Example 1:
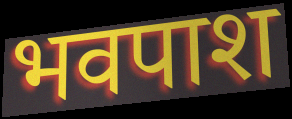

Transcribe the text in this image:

भवपाश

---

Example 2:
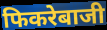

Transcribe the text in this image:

फिकरेबाजी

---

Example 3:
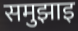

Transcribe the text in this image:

समुझाइ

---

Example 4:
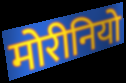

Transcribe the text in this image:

मोरीनियो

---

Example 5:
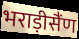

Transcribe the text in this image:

भराड़ीसैंण